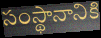
సంస్థానానికి